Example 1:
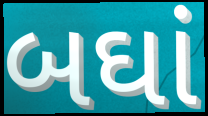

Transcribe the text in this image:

બઘાં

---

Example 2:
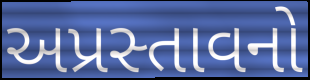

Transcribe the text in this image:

અપ્રસ્તાવનો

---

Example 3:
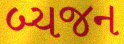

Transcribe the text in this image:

બ્યજન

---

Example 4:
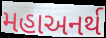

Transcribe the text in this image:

મહાઅનર્થ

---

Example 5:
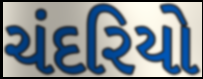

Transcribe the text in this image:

ચંદરિયો